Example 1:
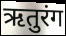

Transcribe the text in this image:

ऋतुरंग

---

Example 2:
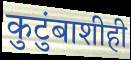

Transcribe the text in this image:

कुटुंबाशीही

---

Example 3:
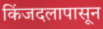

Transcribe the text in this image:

किंजदलापासून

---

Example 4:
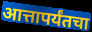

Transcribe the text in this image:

आत्तापर्यंतचा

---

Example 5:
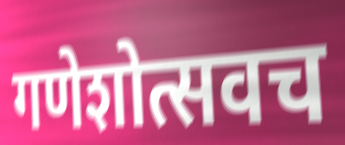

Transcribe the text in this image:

गणेशोत्सवच